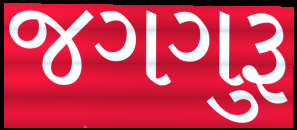
જગગુરૂ